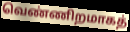
வெண்ணிறமாகத்